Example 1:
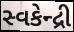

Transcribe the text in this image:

સ્વકેન્દ્રી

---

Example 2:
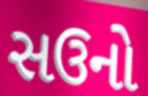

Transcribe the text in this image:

સઉનો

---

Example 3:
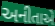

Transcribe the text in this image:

અનીતાએ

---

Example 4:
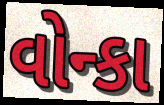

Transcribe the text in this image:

વોન્કા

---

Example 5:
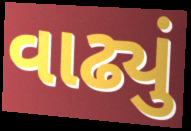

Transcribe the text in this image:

વાઢ્યું